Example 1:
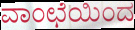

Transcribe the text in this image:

ವಾಂಛೆಯಿಂದ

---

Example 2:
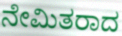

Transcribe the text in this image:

ನೇಮಿತರಾದ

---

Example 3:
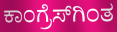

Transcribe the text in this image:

ಕಾಂಗ್ರೆಸ್‌ಗಿಂತ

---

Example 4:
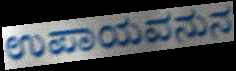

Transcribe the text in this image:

ಉಪಾಯವನುನ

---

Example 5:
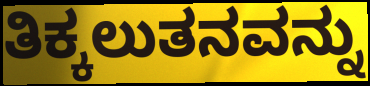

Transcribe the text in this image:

ತಿಕ್ಕಲುತನವನ್ನು